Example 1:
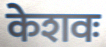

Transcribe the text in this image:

केशवः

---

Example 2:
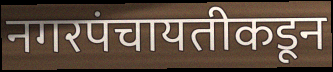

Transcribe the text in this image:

नगरपंचायतीकडून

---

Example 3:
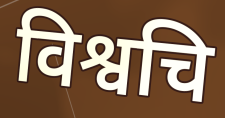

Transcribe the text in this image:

विश्वचि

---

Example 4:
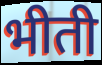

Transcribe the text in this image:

भीती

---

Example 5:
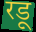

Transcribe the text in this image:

रडू